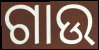
ଗାଉ